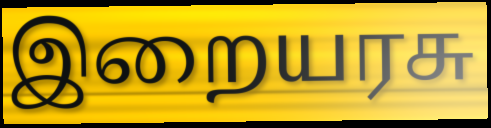
இறையரசு